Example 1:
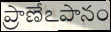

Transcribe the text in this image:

ప్రాణేఽపానం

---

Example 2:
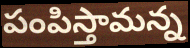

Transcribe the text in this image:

పంపిస్తామన్న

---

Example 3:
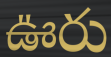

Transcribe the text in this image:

ఊరు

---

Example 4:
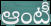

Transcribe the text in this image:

ఆంటీ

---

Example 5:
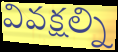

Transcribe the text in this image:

వివక్షల్ని